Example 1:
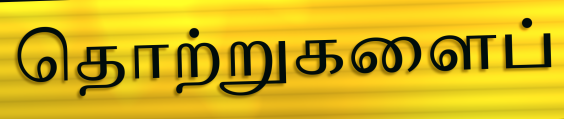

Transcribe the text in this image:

தொற்றுகளைப்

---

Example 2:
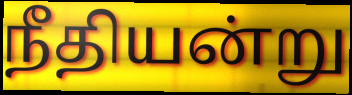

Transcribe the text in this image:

நீதியன்று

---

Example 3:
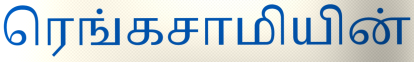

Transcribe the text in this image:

ரெங்கசாமியின்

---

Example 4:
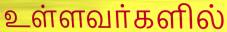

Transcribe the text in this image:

உள்ளவர்களில்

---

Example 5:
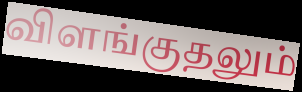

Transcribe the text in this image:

விளங்குதலும்